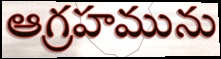
ఆగ్రహమును